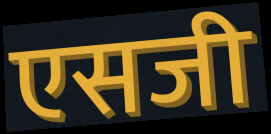
एसजी